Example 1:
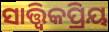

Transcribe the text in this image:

ସାତ୍ତ୍ଵିକପ୍ରିୟ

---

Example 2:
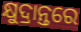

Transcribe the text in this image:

କ୍ଷୁଦ୍ରାନ୍ତରେ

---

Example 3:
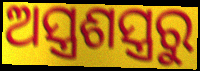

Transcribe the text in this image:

ଅସ୍ତ୍ରଶସ୍ତ୍ରରୁ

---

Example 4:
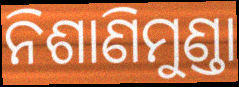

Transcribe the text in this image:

ନିଶାଣିମୁଣ୍ଡା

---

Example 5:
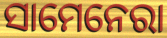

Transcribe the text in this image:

ସାମେନେରା